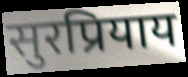
सुरप्रियाय